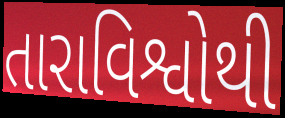
તારાવિશ્વોથી